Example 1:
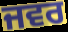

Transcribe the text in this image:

ਜਵਰ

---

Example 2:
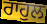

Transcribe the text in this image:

ਰਾਹੁਲ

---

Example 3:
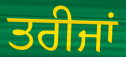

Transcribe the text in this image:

ਤਰੀਜਾਂ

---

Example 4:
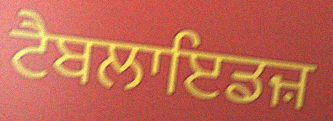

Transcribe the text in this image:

ਟੈਬਲਾਇਡਜ਼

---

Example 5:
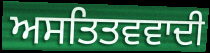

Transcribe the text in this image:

ਅਸਤਿਤਵਵਾਦੀ